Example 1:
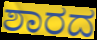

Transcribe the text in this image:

ಶಾರದ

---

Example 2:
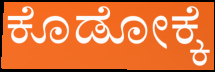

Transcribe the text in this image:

ಕೊಡೋಕ್ಕೆ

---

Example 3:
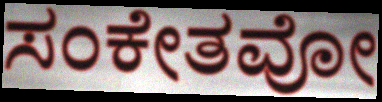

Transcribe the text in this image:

ಸಂಕೇತವೋ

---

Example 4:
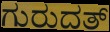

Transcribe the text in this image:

ಗುರುದತ್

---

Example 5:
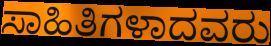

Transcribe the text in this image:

ಸಾಹಿತಿಗಳಾದವರು